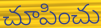
చూపించు